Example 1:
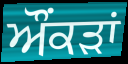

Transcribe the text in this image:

ਔਂਕੜਾਂ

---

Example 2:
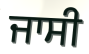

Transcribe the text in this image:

ਜਾਸੀ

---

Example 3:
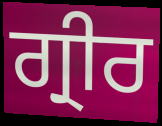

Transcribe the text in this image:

ਗ੍ਰੀਰ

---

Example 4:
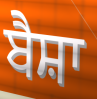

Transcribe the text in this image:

ਬੈਸ਼ਾ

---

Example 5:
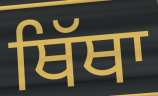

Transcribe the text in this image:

ਥਿੱਥਾ